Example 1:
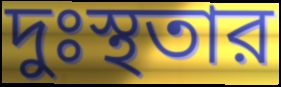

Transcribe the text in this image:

দুঃস্থতার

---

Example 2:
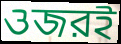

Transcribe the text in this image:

ওজরই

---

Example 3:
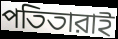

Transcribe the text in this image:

পতিতারাই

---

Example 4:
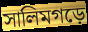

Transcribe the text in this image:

সালিমগড়ে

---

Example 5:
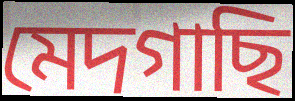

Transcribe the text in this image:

মেদগাছি